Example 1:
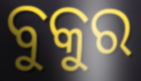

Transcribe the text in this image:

ବୁକୁର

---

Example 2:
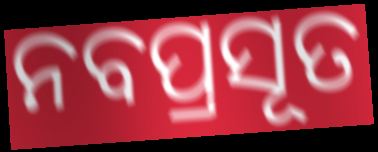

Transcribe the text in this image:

ନବପ୍ରସୂତ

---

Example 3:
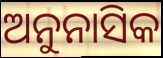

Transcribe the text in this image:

ଅନୁନାସିକ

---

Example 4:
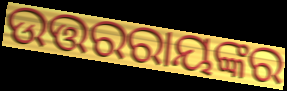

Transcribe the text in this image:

ଉତ୍ତରରାୟଙ୍କର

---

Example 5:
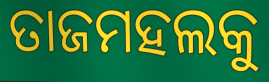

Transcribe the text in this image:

ତାଜମହଲକୁ